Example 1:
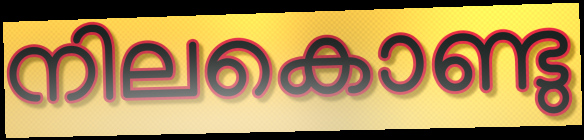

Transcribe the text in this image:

നിലകൊണ്ടു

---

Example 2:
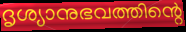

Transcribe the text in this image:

ദൃശ്യാനുഭവത്തിന്റെ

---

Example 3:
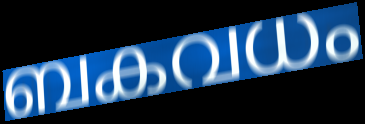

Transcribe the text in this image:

ബകവധം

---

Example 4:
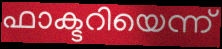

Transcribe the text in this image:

ഫാക്ടറിയെന്ന്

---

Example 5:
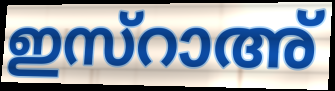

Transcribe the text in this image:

ഇസ്റാഅ്